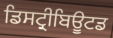
ਡਿਸਟ੍ਰੀਬਿਊਟਡ